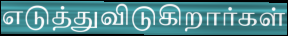
எடுத்துவிடுகிறார்கள்